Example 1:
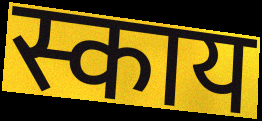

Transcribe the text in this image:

स्काय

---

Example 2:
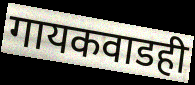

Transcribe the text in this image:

गायकवाडही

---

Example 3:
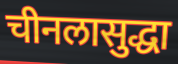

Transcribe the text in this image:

चीनलासुद्धा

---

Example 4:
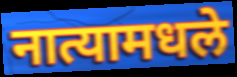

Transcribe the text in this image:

नात्यामधले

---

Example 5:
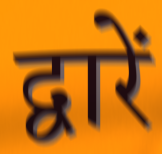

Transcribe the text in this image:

द्वारें